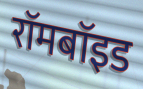
रॉमबॉइड